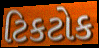
ટિકટોક